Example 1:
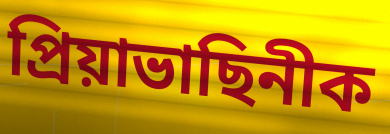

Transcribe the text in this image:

প্ৰিয়াভাছিনীক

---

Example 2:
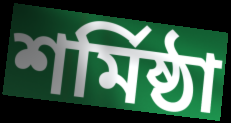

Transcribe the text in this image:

শৰ্মিষ্ঠা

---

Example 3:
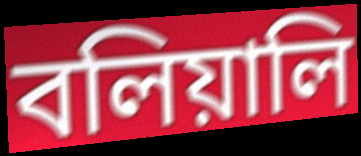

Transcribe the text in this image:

বলিয়ালি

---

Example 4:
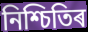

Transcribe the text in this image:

নিশ্চিতিৰ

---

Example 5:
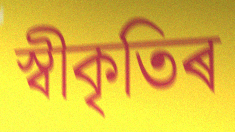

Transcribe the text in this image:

স্বীকৃতিৰ